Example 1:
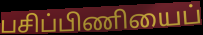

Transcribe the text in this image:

பசிப்பிணியைப்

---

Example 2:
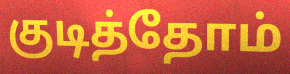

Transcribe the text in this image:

குடித்தோம்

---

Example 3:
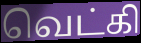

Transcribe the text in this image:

வெட்கி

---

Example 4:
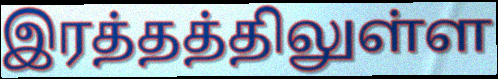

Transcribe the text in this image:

இரத்தத்திலுள்ள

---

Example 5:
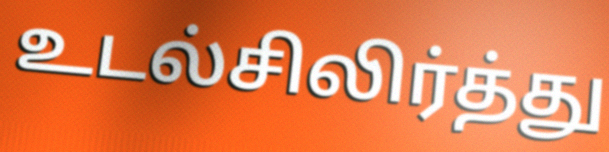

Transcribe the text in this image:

உடல்சிலிர்த்து